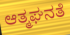
ಆತ್ಮಘನತೆ